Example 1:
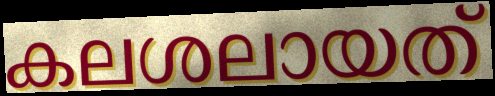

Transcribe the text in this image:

കലശലായത്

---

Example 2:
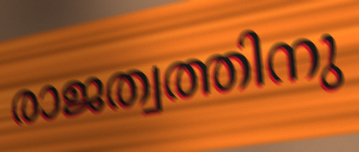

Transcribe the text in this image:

രാജത്വത്തിനു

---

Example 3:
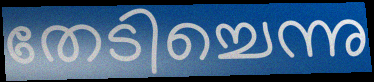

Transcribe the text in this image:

തേടിച്ചെന്നു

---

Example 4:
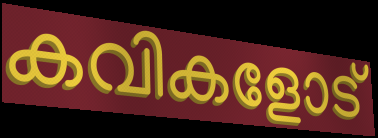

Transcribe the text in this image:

കവികളോട്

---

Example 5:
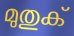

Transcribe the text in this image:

മുതുക്